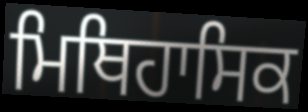
ਮਿਥਿਹਾਸਿਕ